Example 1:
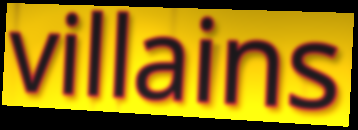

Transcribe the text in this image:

villains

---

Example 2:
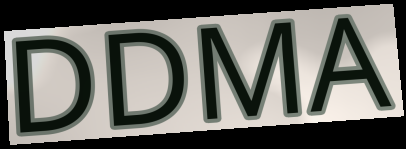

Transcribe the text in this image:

DDMA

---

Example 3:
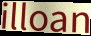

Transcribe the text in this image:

illoan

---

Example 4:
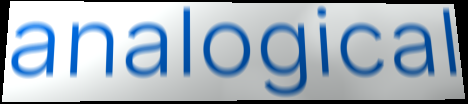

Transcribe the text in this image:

analogical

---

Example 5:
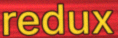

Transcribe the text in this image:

redux